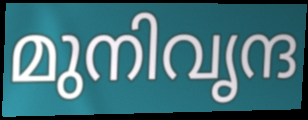
മുനിവൃന്ദ